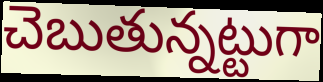
చెబుతున్నట్టుగా